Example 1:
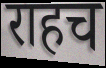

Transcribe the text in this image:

राहच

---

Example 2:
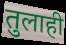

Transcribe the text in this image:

तुलाही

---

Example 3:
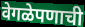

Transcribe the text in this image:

वेगळेपणाची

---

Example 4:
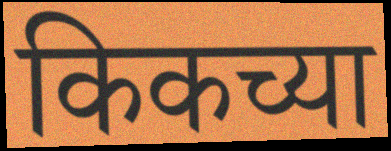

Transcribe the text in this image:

किकच्या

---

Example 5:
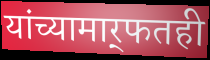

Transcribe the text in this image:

यांच्यामार्फतही